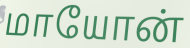
மாயோன்